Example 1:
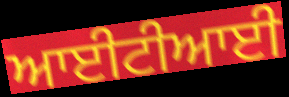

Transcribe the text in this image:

ਆਈਟੀਆਈ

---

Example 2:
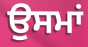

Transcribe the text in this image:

ਉਸਮਾਂ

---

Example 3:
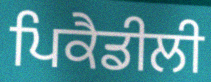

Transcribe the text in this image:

ਪਿਕੈਡੀਲੀ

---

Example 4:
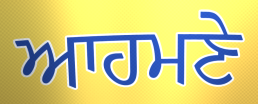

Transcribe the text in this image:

ਆਹਮਣੇ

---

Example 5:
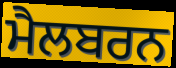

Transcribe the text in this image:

ਮੈਲਬਰਨ